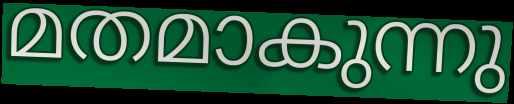
മതമാകുന്നു